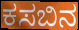
ಕಸಬಿನ